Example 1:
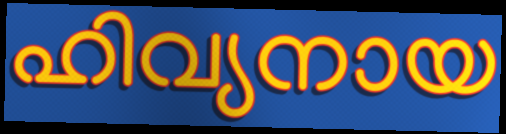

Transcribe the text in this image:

ഹിവ്യനായ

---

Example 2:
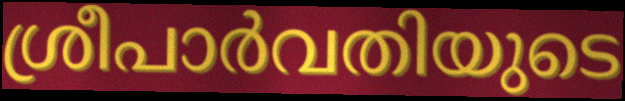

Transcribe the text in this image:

ശ്രീപാർവതിയുടെ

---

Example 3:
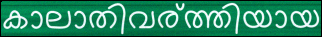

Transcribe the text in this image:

കാലാതിവര്ത്തിയായ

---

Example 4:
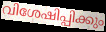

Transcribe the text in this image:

വിശേഷിപ്പിക്കും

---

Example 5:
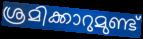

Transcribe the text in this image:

ശ്രമിക്കാറുമുണ്ട്